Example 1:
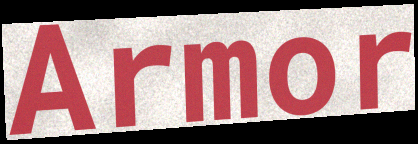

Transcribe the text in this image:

Armor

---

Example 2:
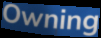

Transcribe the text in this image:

Owning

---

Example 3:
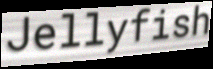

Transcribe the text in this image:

Jellyfish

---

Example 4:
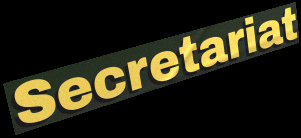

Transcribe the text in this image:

Secretariat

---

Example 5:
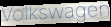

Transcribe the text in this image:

Volkswagen